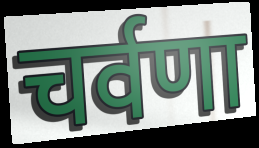
चर्वणा